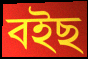
বইছ